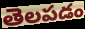
తెలపడం